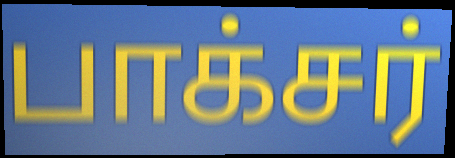
பாக்சர்